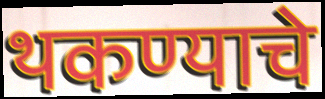
थकण्याचे